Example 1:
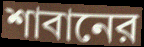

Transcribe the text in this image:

শাবানের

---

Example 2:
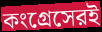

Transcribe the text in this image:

কংগ্রেসেরই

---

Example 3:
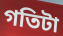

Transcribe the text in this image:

গতিটা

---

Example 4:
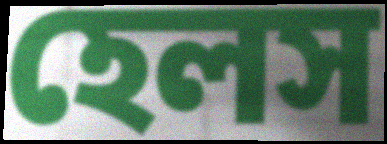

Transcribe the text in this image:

হেলস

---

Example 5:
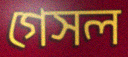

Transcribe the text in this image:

গেসল